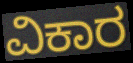
ವಿಕಾರ